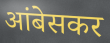
आंबेसकर